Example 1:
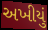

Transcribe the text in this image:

અખીયું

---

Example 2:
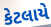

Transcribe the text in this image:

કેટલાયે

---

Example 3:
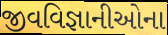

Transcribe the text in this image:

જીવવિજ્ઞાનીઓના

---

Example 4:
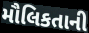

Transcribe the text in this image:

મૌલિકતાની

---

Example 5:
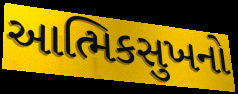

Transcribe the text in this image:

આત્મિકસુખનો